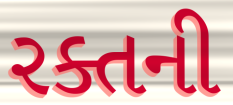
રક્તની